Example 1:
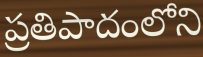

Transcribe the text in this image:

ప్రతిపాదంలోని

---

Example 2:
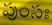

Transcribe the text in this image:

పుంసః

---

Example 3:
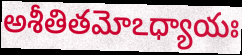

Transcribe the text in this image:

అశీతితమోఽధ్యాయః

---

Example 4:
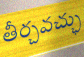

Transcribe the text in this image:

తీర్చవచ్ఛు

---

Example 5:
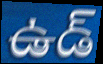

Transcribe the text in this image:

ఉడ్